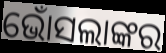
ଭୋଁସଲାଙ୍କର